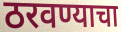
ठरवण्याचा